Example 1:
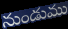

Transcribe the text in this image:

నుండుము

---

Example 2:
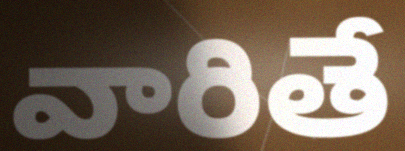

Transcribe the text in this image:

వారితే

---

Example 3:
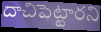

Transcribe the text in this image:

దాచిపెట్టారని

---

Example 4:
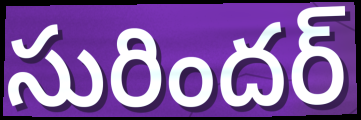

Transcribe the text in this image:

సురిందర్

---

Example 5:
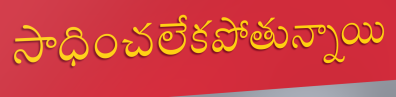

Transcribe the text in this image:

సాధించలేకపోతున్నాయి